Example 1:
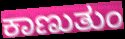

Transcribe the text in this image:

ಕಾಣುತುಂ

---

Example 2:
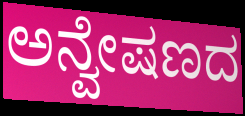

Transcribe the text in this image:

ಅನ್ವೇಷಣದ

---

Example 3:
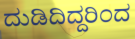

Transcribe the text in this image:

ದುಡಿದಿದ್ದರಿಂದ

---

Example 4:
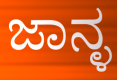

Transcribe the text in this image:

ಜಾನ್ಳ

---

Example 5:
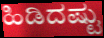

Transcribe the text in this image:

ಹಿಡಿದಷ್ಟು